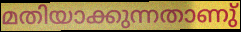
മതിയാക്കുന്നതാണു്